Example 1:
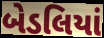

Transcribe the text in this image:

બેડલિયાં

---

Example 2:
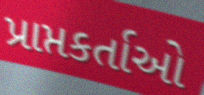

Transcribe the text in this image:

પ્રાપ્તકર્તાઓ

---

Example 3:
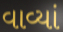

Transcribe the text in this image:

વાવ્યાં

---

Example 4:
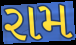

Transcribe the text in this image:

રામ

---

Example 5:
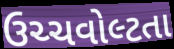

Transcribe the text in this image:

ઉચ્ચવોલ્ટતા